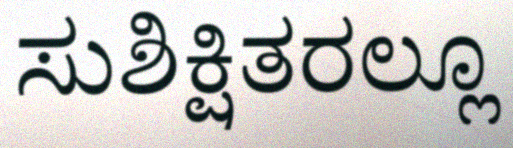
ಸುಶಿಕ್ಷಿತರಲ್ಲೂ